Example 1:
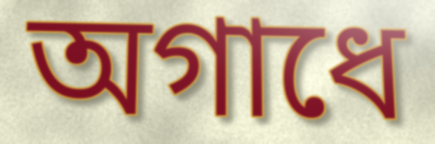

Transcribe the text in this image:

অগাধে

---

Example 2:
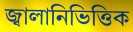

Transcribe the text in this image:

জ্বালানিভিত্তিক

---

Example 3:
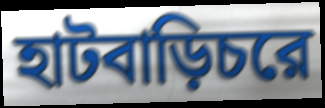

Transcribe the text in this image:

হাটবাড়িচরে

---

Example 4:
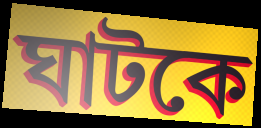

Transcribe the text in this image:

ঘাটকে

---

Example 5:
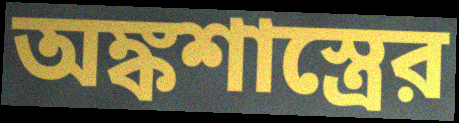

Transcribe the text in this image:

অঙ্কশাস্ত্রের